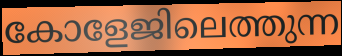
കോളേജിലെത്തുന്ന